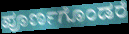
ಪೂರ್ಣಗೊಂಡರೆ